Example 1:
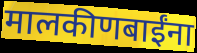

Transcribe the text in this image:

मालकीणबाईंना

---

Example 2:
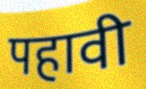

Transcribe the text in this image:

पहावी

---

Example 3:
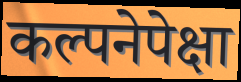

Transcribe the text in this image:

कल्पनेपेक्षा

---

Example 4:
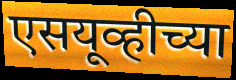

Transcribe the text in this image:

एसयूव्हीच्या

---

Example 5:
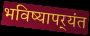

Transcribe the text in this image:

भविष्यापर्यंत